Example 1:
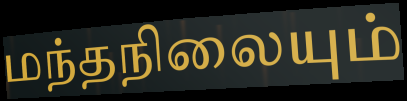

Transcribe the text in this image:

மந்தநிலையும்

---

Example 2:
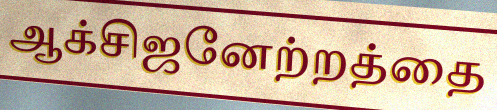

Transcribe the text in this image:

ஆக்சிஜனேற்றத்தை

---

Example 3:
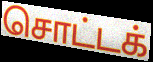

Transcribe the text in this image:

சொட்டக்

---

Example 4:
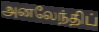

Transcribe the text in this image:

அனலேந்திப்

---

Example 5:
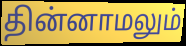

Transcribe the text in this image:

தின்னாமலும்